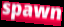
spawn